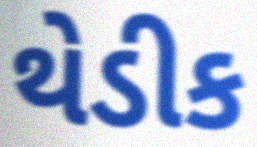
થેડીક